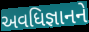
અવધિજ્ઞાનને